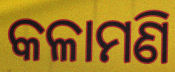
କଳାମଣି